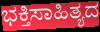
ಭಕ್ತಿಸಾಹಿತ್ಯದ